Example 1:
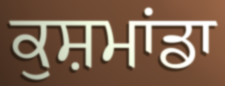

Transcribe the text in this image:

ਕੁਸ਼ਮਾਂਡਾ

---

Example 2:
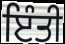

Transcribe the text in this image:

ਇੰਤੀ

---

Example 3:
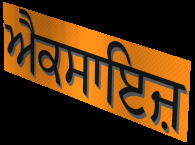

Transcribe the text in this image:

ਐਕਸਾਇਜ਼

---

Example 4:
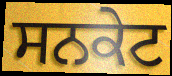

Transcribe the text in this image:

ਸਨਕੇਟ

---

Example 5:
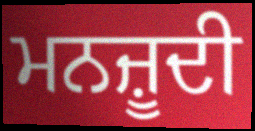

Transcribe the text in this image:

ਮਨਜ਼ੂਦੀ